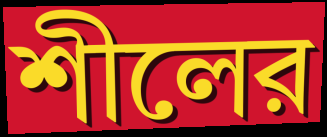
শীলের